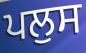
ਪਲੁਸ